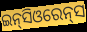
ଇନ୍‌ସିଓରେନ୍‌ସ